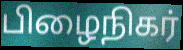
பிழைநிகர்